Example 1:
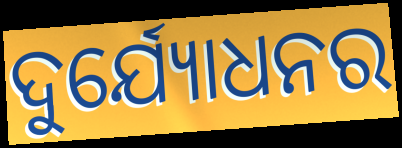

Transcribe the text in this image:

ଦୁର୍ଯ୍ୟୋଧନର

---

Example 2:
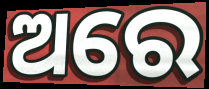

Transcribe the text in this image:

ଅରେ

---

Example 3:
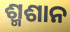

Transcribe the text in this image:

ଶ୍ମଶାନ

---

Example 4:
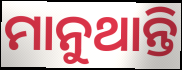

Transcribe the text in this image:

ମାନୁଥାନ୍ତି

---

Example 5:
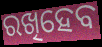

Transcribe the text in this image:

ରଖିହେବ